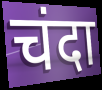
चंदा